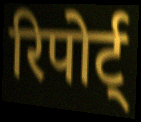
रिपोर्ट्